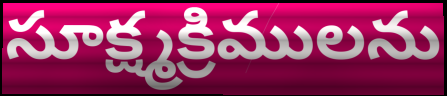
సూక్ష్మక్రిములను